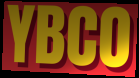
YBCO